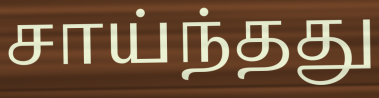
சாய்ந்தது